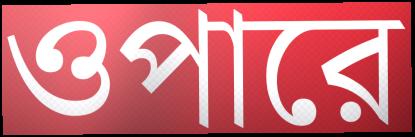
ওপারে